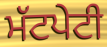
ਮੱਟਪੇਟੀ